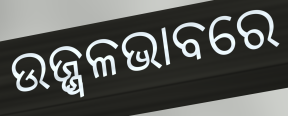
ଉଜ୍ଜ୍ୱଳଭାବରେ